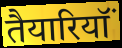
तैयारियॉं